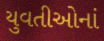
યુવતીઓનાં